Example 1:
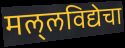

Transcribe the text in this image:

मल्लविद्येचा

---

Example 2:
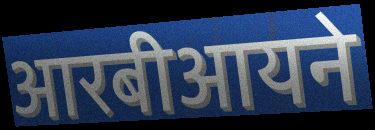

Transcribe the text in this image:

आरबीआयने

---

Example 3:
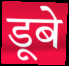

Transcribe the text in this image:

डूबे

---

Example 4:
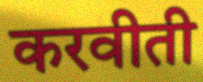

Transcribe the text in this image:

करवीती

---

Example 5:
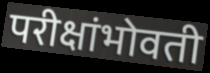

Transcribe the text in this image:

परीक्षांभोवती